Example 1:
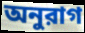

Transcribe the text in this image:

অনুরাগ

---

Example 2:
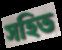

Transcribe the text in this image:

সহিত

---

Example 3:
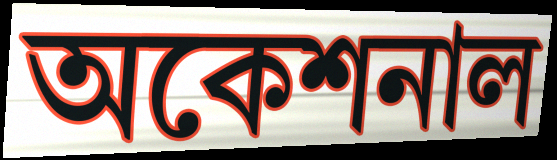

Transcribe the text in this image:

অকেশনাল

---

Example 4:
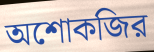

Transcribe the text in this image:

অশোকজির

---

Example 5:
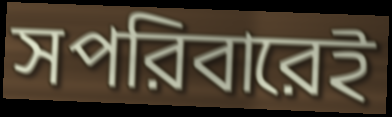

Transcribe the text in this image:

সপরিবারেই